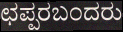
ಛಪ್ಪರಬಂದರು